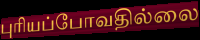
புரியப்போவதில்லை